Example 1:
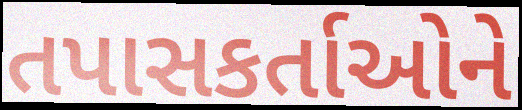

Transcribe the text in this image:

તપાસકર્તાઓને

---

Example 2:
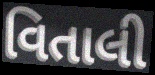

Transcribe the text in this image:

વિતાલી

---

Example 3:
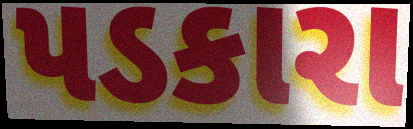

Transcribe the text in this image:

પડકારા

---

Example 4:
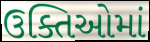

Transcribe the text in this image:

ઉક્તિઓમાં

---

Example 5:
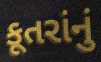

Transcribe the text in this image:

કૂતરાંનું